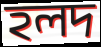
হলদ